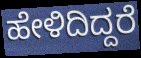
ಹೇಳಿದಿದ್ದರೆ